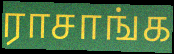
ராசாங்க